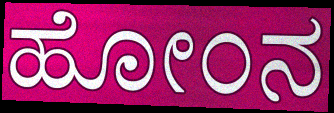
ಹೋಂನ